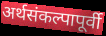
अर्थसंकल्पापूर्वी